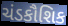
ચંડકૌશિક